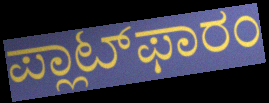
ಪ್ಲಾಟ್‌ಫಾರಂ